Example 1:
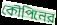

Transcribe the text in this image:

কৌপিনের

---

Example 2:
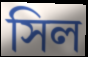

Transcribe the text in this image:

সিল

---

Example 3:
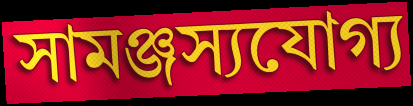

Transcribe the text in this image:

সামঞ্জস্যযোগ্য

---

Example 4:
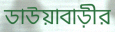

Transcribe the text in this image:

ডাউয়াবাড়ীর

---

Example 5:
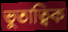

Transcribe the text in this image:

ভুতাত্বিক